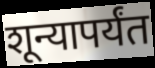
शून्यापर्यंत